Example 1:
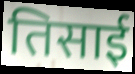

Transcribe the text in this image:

तिसाई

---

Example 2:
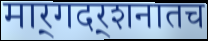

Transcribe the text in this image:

मार्गदर्शनातच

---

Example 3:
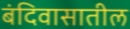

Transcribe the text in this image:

बंदिवासातील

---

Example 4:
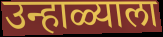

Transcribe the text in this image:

उन्हाळ्याला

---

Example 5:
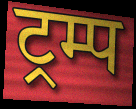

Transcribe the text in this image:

ट्रम्‍प